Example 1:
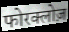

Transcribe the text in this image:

फोरक्लोज़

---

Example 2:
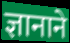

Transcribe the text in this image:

ज्ञानाने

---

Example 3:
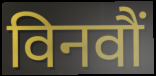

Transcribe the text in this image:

विनवौं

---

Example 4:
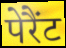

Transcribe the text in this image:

पेरैंट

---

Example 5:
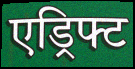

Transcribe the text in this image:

एड्रिफ्ट